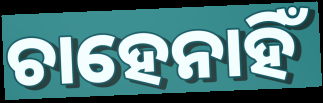
ଚାହେନାହିଁ